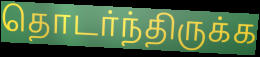
தொடர்ந்திருக்க